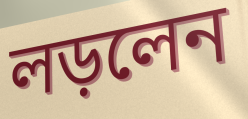
লড়লেন